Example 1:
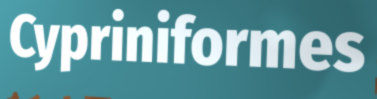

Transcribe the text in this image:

Cypriniformes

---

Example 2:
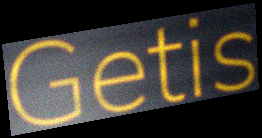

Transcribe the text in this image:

Getis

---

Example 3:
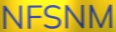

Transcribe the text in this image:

NFSNM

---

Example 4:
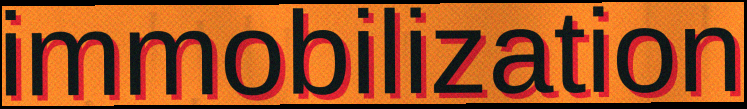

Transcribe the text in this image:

immobilization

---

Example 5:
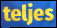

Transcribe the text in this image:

teljes